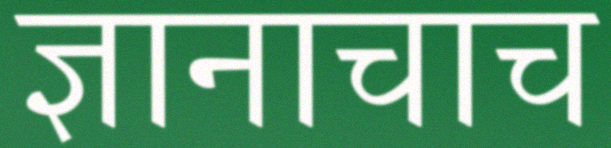
ज्ञानाचाच